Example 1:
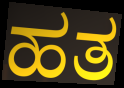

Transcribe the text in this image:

ಹತ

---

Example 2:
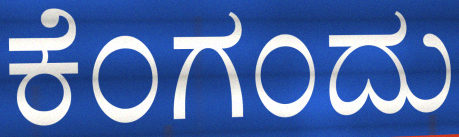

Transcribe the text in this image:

ಕೆಂಗಂದು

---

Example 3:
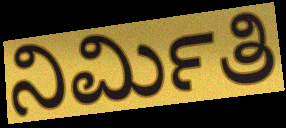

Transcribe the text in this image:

ನಿರ್ಮಿತಿ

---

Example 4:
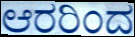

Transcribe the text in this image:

ಆರರಿಂದ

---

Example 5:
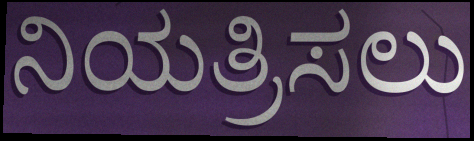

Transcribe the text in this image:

ನಿಯತ್ರಿಸಲು